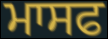
ਮਾਸਫ